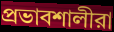
প্রভাবশালীরা